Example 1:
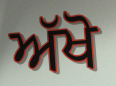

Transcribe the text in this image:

ਅੱਖੋ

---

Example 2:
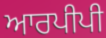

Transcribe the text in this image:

ਆਰਪੀਪੀ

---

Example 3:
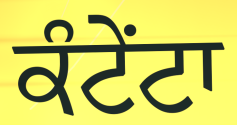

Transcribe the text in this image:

ਕੰਟੇਂਟਾ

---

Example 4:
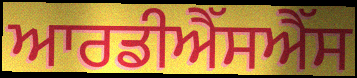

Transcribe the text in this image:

ਆਰਡੀਐੱਸਐੱਸ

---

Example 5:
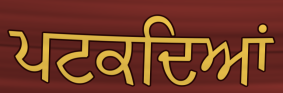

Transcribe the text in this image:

ਪਟਕਦਿਆਂ